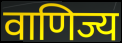
वाणिज्य